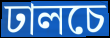
ঢালচে